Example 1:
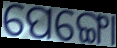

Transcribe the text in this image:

ପେଙ୍ଗୋ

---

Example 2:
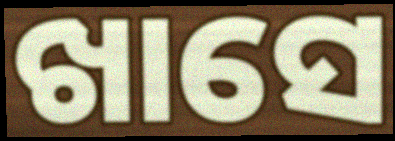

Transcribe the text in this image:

ଖାସେ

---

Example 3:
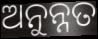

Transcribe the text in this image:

ଅନୁନ୍ନତ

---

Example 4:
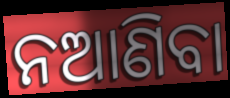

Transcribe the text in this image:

ନଆଣିବା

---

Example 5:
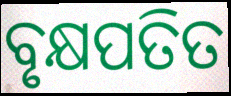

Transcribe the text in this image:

ବୃକ୍ଷପତିତ